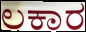
ಲಕಾರ